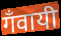
गँवायी